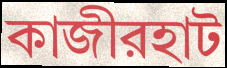
কাজীরহাট